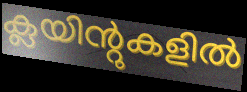
ക്ലയിന്റുകളിൽ